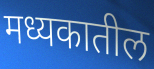
मध्यकातील